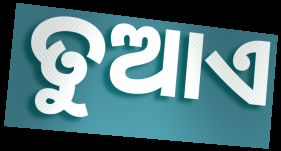
ତୁଆଏ